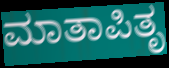
ಮಾತಾಪಿತೃ